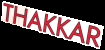
THAKKAR